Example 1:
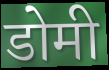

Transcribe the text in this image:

डोमी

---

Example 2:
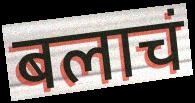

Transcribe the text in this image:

बलाचं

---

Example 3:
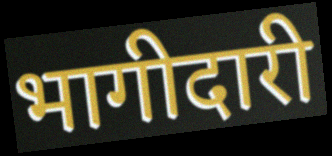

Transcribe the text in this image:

भागीदारी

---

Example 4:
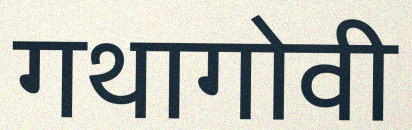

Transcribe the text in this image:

गथागोवी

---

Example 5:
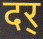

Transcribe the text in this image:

दर्